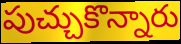
పుచ్చుకొన్నారు